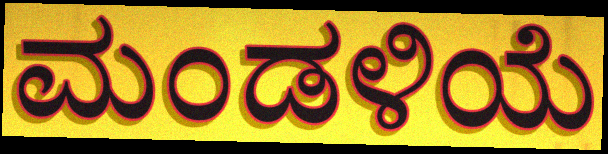
ಮಂಡಳಿಯೆ